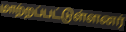
மாற்றப்பட்டுள்ளனர்